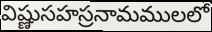
విష్ణుసహస్రనామములలో